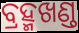
ବ୍ରହ୍ମଖଣ୍ଡ